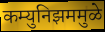
कम्युनिझममुळे